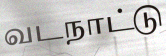
வடநாட்டு